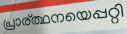
പ്രാര്ത്ഥനയെപ്പറ്റി